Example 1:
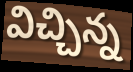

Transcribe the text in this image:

విచ్చిన్న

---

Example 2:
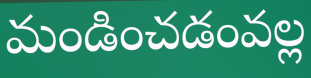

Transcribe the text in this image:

మండించడంవల్ల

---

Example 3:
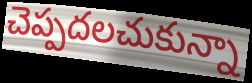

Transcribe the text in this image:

చెప్పదలచుకున్నా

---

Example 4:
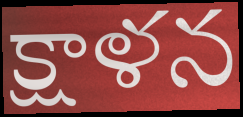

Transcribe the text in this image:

క్షాళన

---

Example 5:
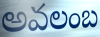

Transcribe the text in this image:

అవలంబ